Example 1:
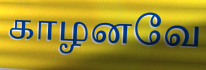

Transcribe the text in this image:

காழனவே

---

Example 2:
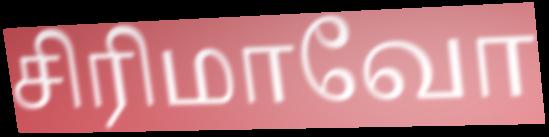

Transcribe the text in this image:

சிரிமாவோ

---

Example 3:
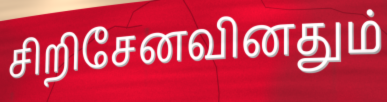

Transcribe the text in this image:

சிறிசேனவினதும்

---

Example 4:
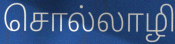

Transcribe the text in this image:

சொல்லாழி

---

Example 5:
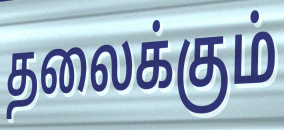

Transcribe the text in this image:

தலைக்கும்